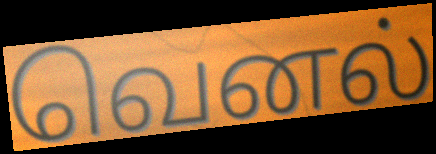
வெனல்